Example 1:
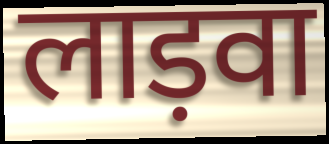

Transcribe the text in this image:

लाड़वा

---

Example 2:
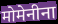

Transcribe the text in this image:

मोमेनीना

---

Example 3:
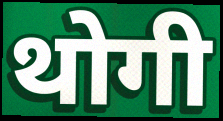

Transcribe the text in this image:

थोगी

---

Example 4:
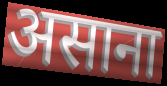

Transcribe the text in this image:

असाना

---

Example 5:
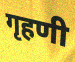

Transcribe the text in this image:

गृहणी